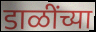
डाळींच्या